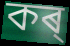
কৰ্